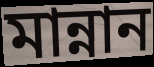
মান্নান